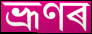
ভ্ৰূণৰ